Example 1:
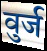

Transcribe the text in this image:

वुर्ज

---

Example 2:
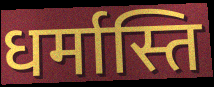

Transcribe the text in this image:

धर्मास्ति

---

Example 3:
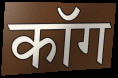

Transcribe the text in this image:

कॉग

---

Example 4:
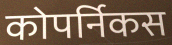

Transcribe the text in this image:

कोपर्निकस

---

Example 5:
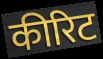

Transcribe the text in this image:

कीरिट